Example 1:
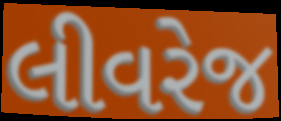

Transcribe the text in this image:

લીવરેજ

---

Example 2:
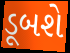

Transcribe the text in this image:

ડૂબશે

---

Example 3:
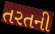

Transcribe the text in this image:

તરતની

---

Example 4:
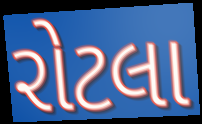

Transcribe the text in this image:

રોટલા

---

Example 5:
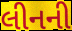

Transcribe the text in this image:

લીનની